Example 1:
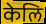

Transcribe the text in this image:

केलि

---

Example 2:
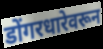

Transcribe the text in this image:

डोंगरधारेवरून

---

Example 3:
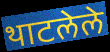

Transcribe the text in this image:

थाटलेले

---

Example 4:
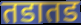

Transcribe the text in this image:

तडातड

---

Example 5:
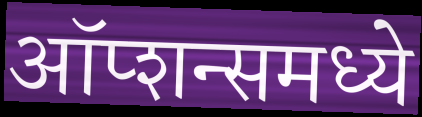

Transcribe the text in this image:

ऑप्शन्समध्ये